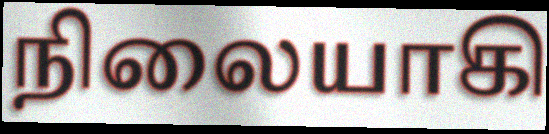
நிலையாகி